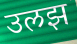
उलझ